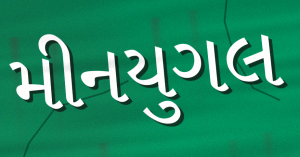
મીનયુગલ